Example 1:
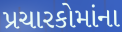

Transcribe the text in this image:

પ્રચારકોમાંના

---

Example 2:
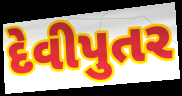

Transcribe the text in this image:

દેવીપુતર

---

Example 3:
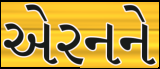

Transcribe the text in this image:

એરનને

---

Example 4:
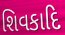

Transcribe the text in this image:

શિવકાદિ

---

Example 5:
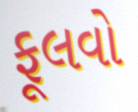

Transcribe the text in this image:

ફૂલવો